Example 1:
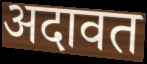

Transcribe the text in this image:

अदावत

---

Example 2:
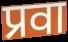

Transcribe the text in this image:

प्रवा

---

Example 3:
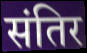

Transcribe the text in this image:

संतिर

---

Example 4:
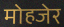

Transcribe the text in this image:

मोहजेर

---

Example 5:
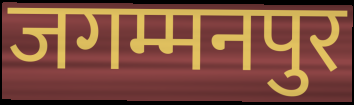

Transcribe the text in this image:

जगम्मनपुर